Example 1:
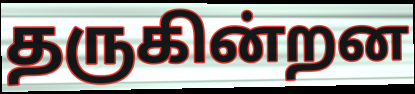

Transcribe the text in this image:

தருகின்றன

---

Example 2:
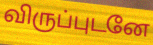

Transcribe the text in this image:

விருப்புடனே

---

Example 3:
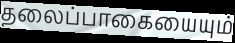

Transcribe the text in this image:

தலைப்பாகையையும்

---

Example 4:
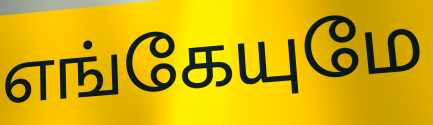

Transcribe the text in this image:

எங்கேயுமே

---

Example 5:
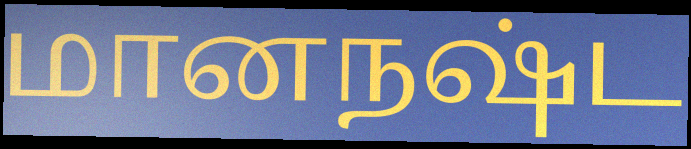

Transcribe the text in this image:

மானநஷ்ட